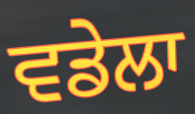
ਵਡੇਲਾ